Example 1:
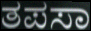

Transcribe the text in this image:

ತಪಸಾ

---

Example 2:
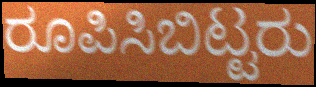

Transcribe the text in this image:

ರೂಪಿಸಿಬಿಟ್ಟರು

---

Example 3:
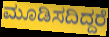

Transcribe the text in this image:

ಮೂಡಿಸದಿದ್ದರೆ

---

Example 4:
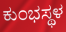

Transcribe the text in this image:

ಕುಂಭಸ್ಥಳ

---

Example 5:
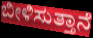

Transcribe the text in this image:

ಬೀಳಿಸುತ್ತಾನೆ